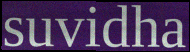
suvidha